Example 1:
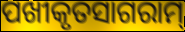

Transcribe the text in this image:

ପଖୀକୃତସାଗରାମ୍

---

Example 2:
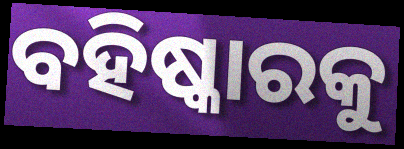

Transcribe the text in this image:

ବହିଷ୍କାରକୁ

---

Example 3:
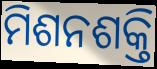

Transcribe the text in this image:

ମିଶନଶକ୍ତି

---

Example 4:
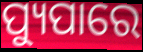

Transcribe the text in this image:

ପ୍ୟୁପାରେ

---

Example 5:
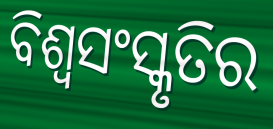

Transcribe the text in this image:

ବିଶ୍ୱସଂସ୍କୃତିର